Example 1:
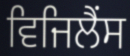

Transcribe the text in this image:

ਵਿਜਿਲੈਂਸ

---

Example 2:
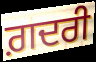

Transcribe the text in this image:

ਗ਼ਦਰੀ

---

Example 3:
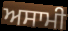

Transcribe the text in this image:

ਅਸਾਮੀ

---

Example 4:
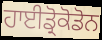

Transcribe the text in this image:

ਹਾਈਡ੍ਰੋਕੋਡੋਨ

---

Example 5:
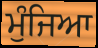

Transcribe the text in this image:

ਮੁੰਜਿਆ